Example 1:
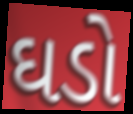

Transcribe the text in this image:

ઘડો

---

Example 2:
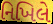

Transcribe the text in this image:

નિખિલે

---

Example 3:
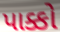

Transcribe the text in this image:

પાક્કો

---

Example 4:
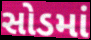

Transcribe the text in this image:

સોડમાં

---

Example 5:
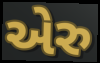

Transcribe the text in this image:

એરુ